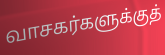
வாசகர்களுக்குத்